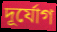
দূর্যোগ